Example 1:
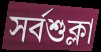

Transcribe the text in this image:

সর্বশুক্লা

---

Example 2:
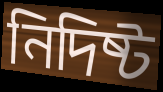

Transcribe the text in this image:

নিদিষ্ট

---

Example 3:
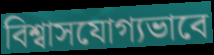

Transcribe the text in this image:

বিশ্বাসযোগ্যভাবে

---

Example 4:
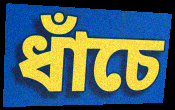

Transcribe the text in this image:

ধাঁচে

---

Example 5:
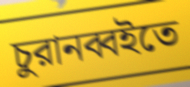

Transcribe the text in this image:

চুরানব্বইতে